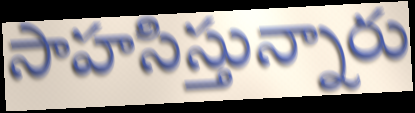
సాహసిస్తున్నారు